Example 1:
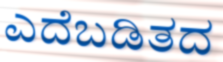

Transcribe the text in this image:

ಎದೆಬಡಿತದ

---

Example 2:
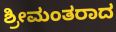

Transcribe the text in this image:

ಶ್ರೀಮಂತರಾದ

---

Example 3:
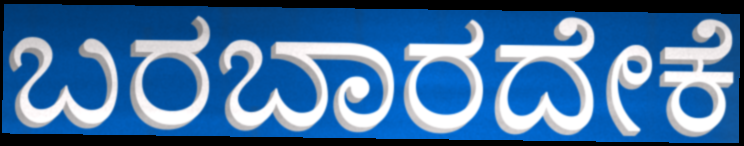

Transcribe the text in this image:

ಬರಬಾರದೇಕೆ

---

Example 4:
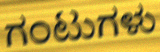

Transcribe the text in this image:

ಗಂಟುಗಳು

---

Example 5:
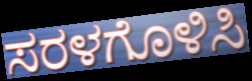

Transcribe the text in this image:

ಸರಳಗೊಳಿಸಿ